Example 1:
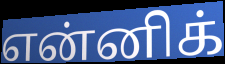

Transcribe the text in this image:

என்னிக்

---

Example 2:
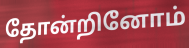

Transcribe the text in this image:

தோன்றினோம்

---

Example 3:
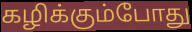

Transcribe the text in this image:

கழிக்கும்போது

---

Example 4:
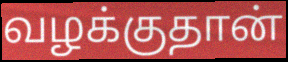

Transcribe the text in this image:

வழக்குதான்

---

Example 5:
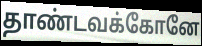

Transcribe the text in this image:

தாண்டவக்கோனே